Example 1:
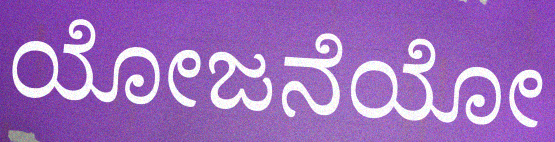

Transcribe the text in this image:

ಯೋಜನೆಯೋ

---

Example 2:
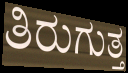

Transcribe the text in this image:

ತಿರುಗುತ್ತ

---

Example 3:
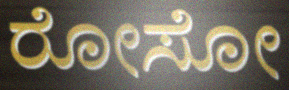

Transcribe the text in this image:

ರೋಸೋ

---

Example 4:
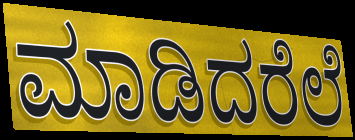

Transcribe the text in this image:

ಮಾಡಿದರೆಲೆ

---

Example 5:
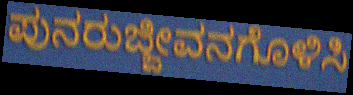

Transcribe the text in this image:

ಪುನರುಜ್ಜೀವನಗೊಳಿಸಿ